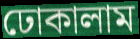
ঢোকালাম